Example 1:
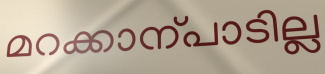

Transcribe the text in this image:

മറക്കാന്പാടില്ല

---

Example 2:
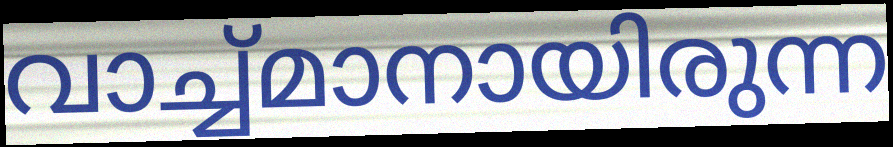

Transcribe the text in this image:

വാച്ച്മാനായിരുന്ന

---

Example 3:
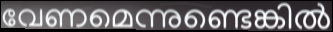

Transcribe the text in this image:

വേണമെന്നുണ്ടെങ്കിൽ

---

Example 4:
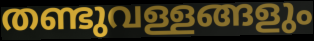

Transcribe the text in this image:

തണ്ടുവള്ളങ്ങളും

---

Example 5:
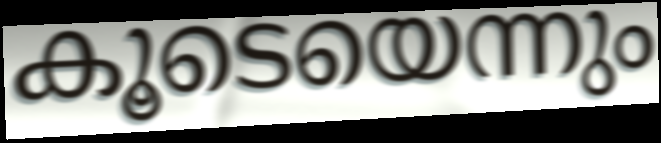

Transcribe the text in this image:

കൂടെയെന്നും